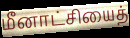
மீனாட்சியைத்